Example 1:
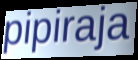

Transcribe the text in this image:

pipiraja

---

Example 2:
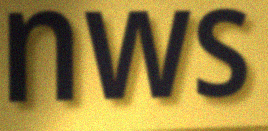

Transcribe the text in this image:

nws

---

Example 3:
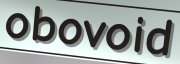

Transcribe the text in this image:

obovoid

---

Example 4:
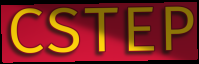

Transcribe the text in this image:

CSTEP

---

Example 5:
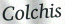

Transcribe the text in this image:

Colchis